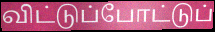
விட்டுப்போட்டுப்